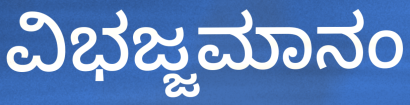
ವಿಭಜ್ಜಮಾನಂ